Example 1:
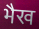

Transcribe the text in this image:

भैख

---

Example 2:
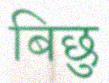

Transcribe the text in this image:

बिछु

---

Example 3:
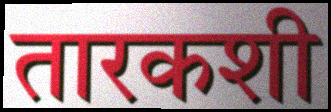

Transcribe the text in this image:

तारकशी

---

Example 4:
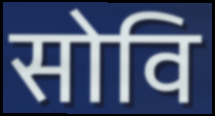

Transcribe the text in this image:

सोवि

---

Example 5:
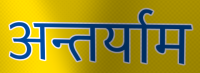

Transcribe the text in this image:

अन्तर्याम